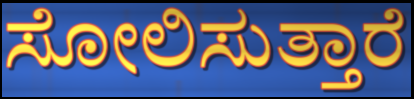
ಸೋಲಿಸುತ್ತಾರೆ